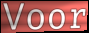
Voor